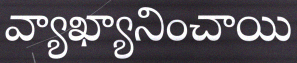
వ్యాఖ్యానించాయి